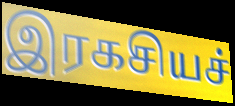
இரகசியச்